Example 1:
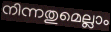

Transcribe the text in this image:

നിന്നതുമെല്ലാം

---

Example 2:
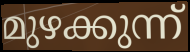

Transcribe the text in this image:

മുഴക്കുന്ന്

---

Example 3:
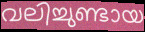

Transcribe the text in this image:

വലിച്ചുണ്ടായ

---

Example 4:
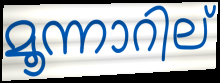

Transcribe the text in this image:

മൂന്നാറില്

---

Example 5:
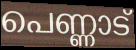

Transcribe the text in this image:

പെണ്ണാട്